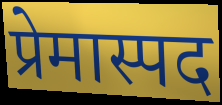
प्रेमास्पद